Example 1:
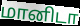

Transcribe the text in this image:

மானிடா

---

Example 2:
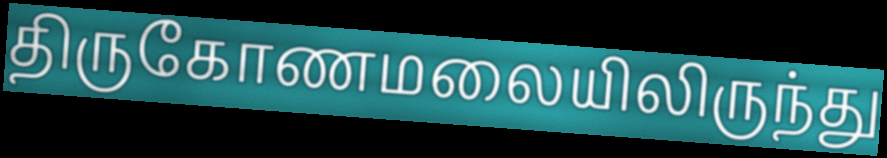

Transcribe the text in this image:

திருகோணமலையிலிருந்து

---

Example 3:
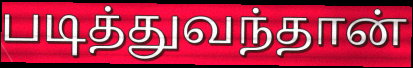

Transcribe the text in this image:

படித்துவந்தான்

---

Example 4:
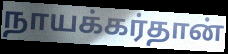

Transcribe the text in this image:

நாயக்கர்தான்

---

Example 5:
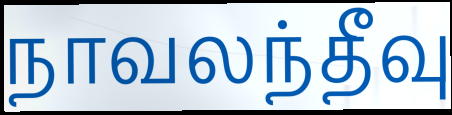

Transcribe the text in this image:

நாவலந்தீவு